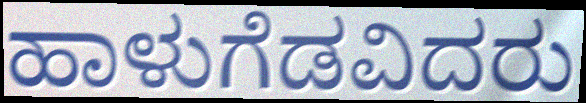
ಹಾಳುಗೆಡವಿದರು